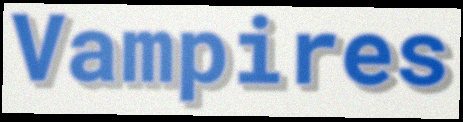
Vampires